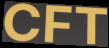
CFT